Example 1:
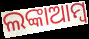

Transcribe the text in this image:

ଲଙ୍କାଆମ୍ବ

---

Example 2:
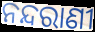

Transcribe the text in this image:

ନନ୍ଦରାଣୀ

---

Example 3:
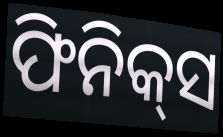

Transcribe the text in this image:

ଫିନିକ୍‌ସ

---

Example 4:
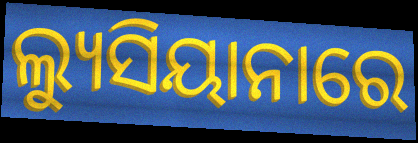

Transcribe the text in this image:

ଲ୍ୟୁସିୟାନାରେ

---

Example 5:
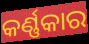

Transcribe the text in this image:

କର୍ଣ୍ଣକାର